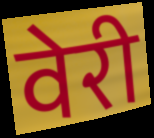
वेरी